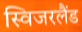
स्विजरलैंड